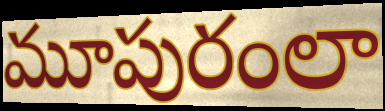
మూపురంలా